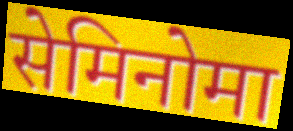
सेमिनोमा